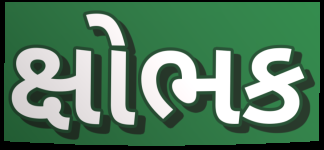
ક્ષોભક